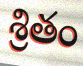
శ్రితం